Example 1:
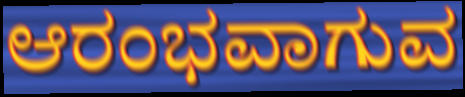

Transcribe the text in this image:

ಆರಂಭವಾಗುವ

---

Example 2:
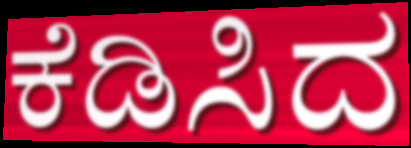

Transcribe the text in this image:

ಕೆಡಿಸಿದ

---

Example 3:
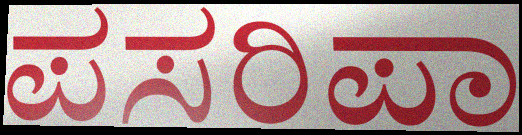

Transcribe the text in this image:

ಪಸರಿಪಾ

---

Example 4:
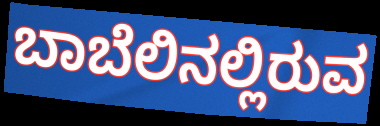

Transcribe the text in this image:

ಬಾಬೆಲಿನಲ್ಲಿರುವ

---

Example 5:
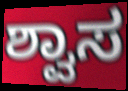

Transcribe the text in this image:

ಶ್ವಾಸ